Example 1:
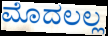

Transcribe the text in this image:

ಮೊದಲಲ್ಲ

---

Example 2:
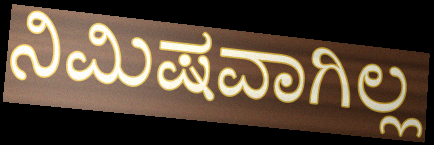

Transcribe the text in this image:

ನಿಮಿಷವಾಗಿಲ್ಲ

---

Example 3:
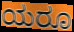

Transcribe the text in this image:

ಯರೂ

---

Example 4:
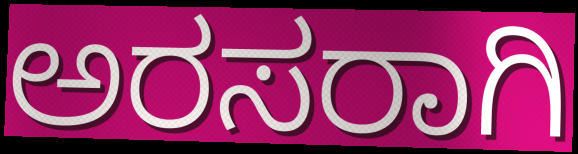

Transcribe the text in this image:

ಅರಸರಾಗಿ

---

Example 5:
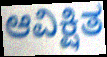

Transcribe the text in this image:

ಆವಿಕ್ಷಿತ